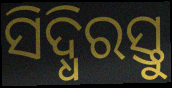
ସିଦ୍ଧିରସ୍ତୁ